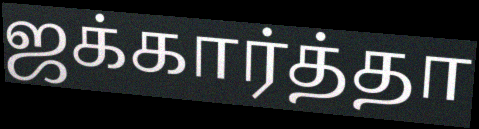
ஜக்கார்த்தா